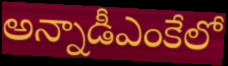
అన్నాడీఎంకేలో